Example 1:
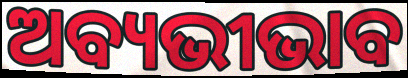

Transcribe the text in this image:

ଅବ୍ୟଭୀଭାବ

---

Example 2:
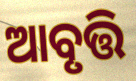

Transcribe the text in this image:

ଆବୃତ୍ତି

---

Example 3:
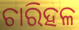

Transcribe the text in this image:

ଚାରିହଳ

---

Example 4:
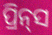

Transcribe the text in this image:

ପ୍ରିନ୍‍ସ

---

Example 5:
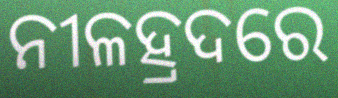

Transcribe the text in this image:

ନୀଳହ୍ରଦରେ